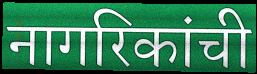
नागरिकांची